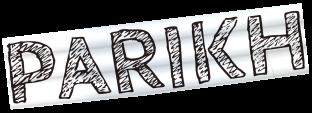
PARIKH